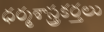
ధర్మశాస్త్రకర్తలు